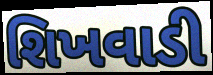
શિખવાડી